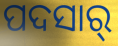
ପଦସାର୍